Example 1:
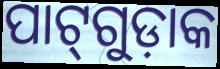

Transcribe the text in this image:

ପାଟ୍‌ଗୁଡ଼ାକ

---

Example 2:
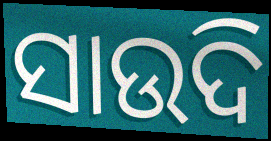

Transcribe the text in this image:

ସାଉଦି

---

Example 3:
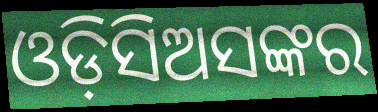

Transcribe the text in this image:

ଓଡ଼ିସିଅସଙ୍କର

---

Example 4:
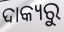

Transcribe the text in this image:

ଦାକ୍ୟରୁ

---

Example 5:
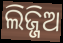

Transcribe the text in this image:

ଲିଜ୍ଜିଅ